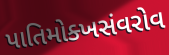
પાતિમોક્ખસંવરોવ